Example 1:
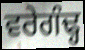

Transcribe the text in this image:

ਵਰੇਗੰਢ੍ਹ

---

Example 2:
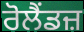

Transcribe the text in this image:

ਰੋਲੈਂਡਜ਼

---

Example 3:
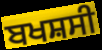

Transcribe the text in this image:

ਬਖਸ਼ਸੀ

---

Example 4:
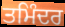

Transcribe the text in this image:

ਤਮਿੰਦਰ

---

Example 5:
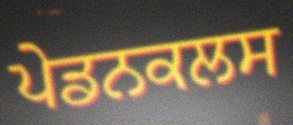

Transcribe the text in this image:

ਪੇਡਨਕਲਸ